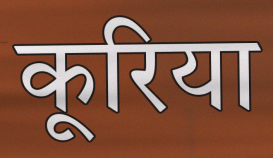
कूरिया